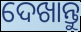
ଦେଖାନ୍ତୁ